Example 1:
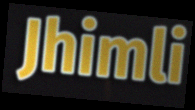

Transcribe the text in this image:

Jhimli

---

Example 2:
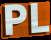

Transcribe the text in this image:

PL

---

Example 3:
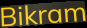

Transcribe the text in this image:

Bikram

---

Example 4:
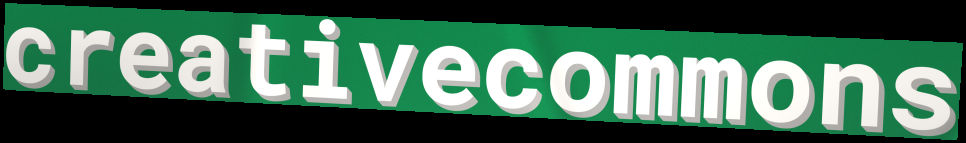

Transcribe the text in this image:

creativecommons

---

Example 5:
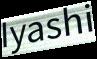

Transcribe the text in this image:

Iyashi